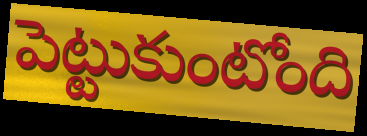
పెట్టుకుంటోంది